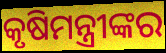
କୃଷିମନ୍ତ୍ରୀଙ୍କର